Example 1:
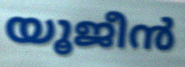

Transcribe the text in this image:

യൂജീൻ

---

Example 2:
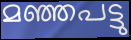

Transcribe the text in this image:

മഞ്ഞപട്ടു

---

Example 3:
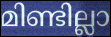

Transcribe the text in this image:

മിണ്ടില്ലാ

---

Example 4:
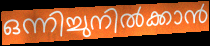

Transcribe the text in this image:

ഒന്നിച്ചുനിൽക്കാൻ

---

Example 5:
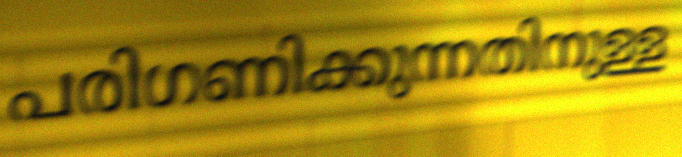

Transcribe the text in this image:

പരിഗണിക്കുന്നതിനുള്ള